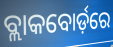
ବ୍ଲାକବୋର୍ଡ଼ରେ